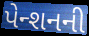
પેન્શનની